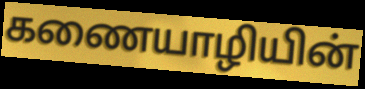
கணையாழியின்